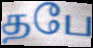
தபே